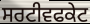
ਸਰਟੀਵਫਕੇਟ